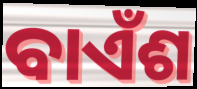
ବାଏଁଶ